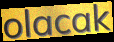
olacak